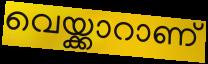
വെയ്ക്കാറാണ്